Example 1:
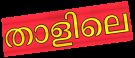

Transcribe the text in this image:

താളിലെ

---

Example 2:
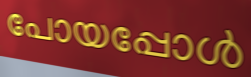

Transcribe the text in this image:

പോയപ്പോൾ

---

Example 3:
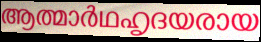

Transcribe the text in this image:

ആത്മാർഥഹൃദയരായ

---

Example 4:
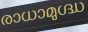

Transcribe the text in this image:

രാധാമുഗ്ദ്ധ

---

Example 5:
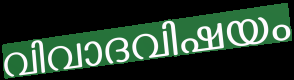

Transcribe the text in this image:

വിവാദവിഷയം